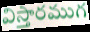
విస్తారముగ